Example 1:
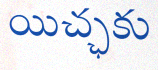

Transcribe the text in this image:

యిచ్ఛకు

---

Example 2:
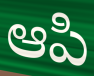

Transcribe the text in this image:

ఆపి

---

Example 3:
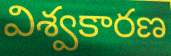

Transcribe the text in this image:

విశ్వకారణ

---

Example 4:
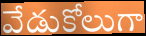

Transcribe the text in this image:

వేడుకోలుగా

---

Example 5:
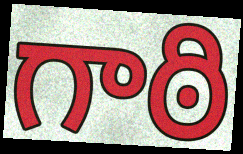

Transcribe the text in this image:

గాఠి